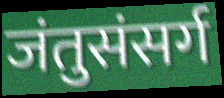
जंतुसंसर्ग